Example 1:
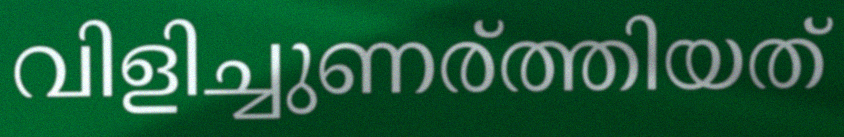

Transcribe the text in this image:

വിളിച്ചുണര്ത്തിയത്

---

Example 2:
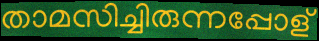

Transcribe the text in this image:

താമസിച്ചിരുന്നപ്പോള്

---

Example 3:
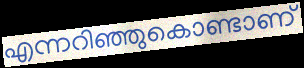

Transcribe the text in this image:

എന്നറിഞ്ഞുകൊണ്ടാണ്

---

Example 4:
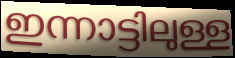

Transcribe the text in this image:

ഇന്നാട്ടിലുള്ള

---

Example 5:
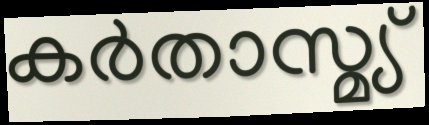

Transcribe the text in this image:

കർതാസ്മ്യ്